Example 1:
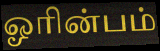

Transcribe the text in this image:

ஓரின்பம்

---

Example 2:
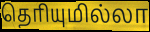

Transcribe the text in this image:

தெரியுமில்லா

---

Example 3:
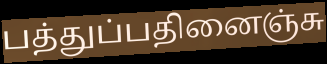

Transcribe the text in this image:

பத்துப்பதினைஞ்சு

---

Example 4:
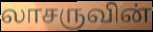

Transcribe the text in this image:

லாசருவின்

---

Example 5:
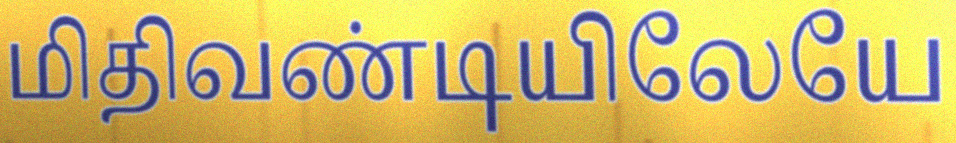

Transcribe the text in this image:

மிதிவண்டியிலேயே